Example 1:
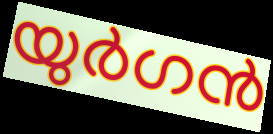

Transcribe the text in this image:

യുർഗൻ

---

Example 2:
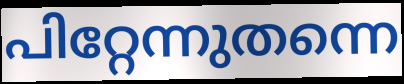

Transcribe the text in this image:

പിറ്റേന്നുതന്നെ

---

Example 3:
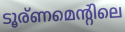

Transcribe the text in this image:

ടൂര്ണമെന്റിലെ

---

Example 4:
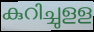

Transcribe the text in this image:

കുറിച്ചുളള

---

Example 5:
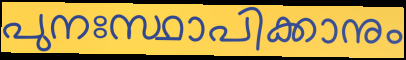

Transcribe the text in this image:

പുനഃസ്ഥാപിക്കാനും